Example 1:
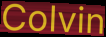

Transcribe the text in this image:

Colvin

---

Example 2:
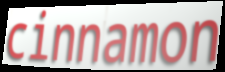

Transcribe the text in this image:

cinnamon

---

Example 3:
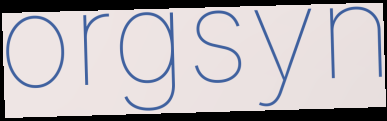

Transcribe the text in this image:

orgsyn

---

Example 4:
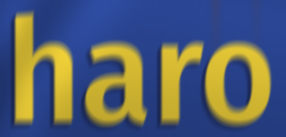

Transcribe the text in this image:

haro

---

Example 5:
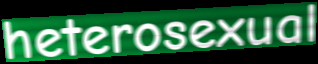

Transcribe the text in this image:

heterosexual